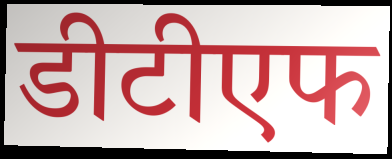
डीटीएफ